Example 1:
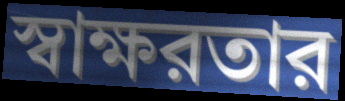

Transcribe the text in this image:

স্বাক্ষরতার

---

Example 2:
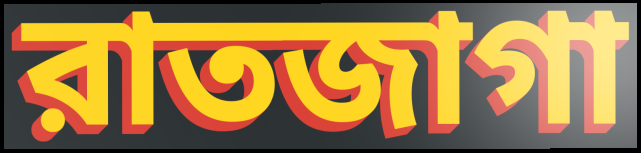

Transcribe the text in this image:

রাতজাগা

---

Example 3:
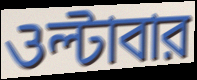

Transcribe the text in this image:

ওল্টাবার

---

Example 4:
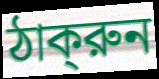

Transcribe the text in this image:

ঠাক্‌রুন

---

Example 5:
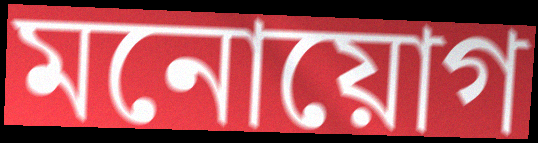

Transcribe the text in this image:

মনোয়োগ